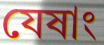
যেষাং